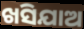
ଖସିଯାଅ